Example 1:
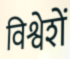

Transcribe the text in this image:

विश्वेशें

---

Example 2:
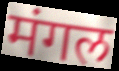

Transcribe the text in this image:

मंगल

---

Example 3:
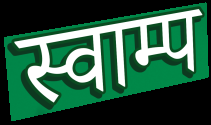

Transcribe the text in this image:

स्वाम्प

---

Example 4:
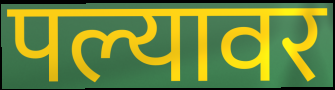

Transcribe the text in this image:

पल्यावर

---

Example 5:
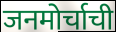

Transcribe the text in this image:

जनमोर्चाची